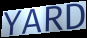
YARD